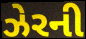
ઝેરની